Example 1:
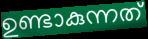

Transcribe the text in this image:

ഉണ്ടാകുന്നത്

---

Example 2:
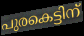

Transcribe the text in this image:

പുരകെട്ടിന്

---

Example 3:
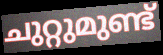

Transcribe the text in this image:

ചുറ്റുമുണ്ട്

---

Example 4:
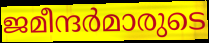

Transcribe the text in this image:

ജമീന്ദർമാരുടെ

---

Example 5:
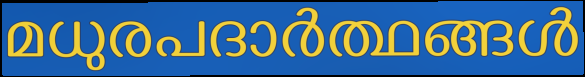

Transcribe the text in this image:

മധുരപദാർത്ഥങ്ങൾ